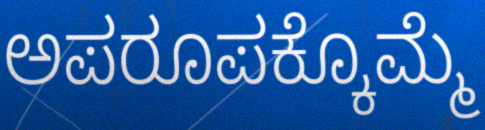
ಅಪರೂಪಕ್ಕೊಮ್ಮೆ